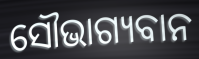
ସୌଭାଗ୍ୟବାନ